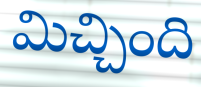
మిచ్చింది